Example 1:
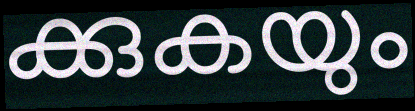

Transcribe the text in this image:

ക്കുകയും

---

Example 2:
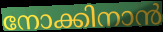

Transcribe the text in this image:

നോക്കിനാൻ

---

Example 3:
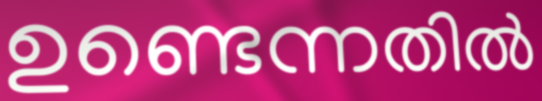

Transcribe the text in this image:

ഉണ്ടെന്നതിൽ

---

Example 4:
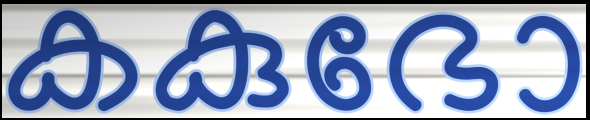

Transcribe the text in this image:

കകുഭോ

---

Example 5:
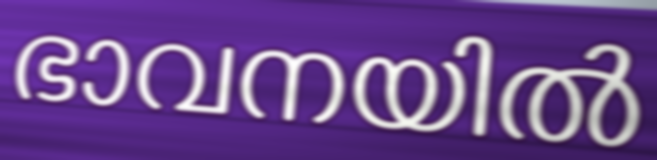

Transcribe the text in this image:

ഭാവനയിൽ